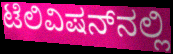
ಟೆಲಿವಿಷನ್‌ನಲ್ಲಿ